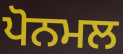
ਪੋਨਮਲ